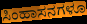
ಸಿಂಹಾಸನಗಳೂ